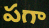
పగా